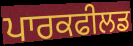
ਪਾਰਕਫੀਲਡ